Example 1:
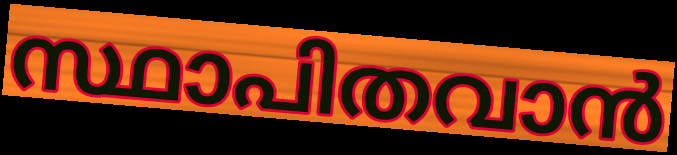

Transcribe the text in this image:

സ്ഥാപിതവാൻ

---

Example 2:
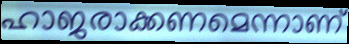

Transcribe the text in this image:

ഹാജരാക്കണമെന്നാണ്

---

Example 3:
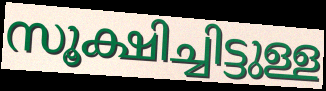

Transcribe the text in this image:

സൂക്ഷിച്ചിട്ടുള്ള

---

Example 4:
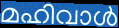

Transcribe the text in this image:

മഹിവാൾ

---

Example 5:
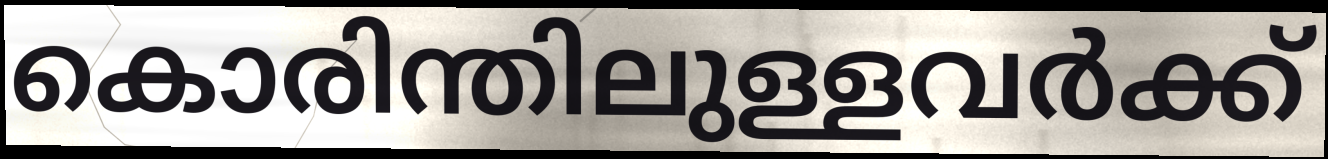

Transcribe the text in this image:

കൊരിന്തിലുള്ളവർക്ക്